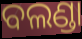
ବଲଣ୍ଡା